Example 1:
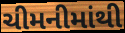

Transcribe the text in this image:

ચીમનીમાંથી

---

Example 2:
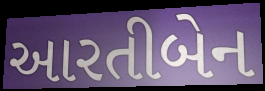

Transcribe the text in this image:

આરતીબેન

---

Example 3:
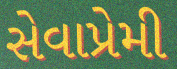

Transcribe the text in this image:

સેવાપ્રેમી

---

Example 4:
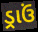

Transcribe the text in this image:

ડ્રાઉં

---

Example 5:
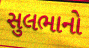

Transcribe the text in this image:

સુલભાનો